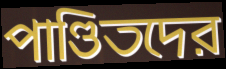
পাণ্ডিতদের